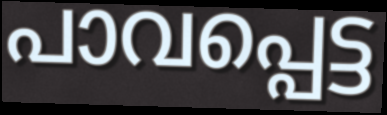
പാവപ്പെട്ട